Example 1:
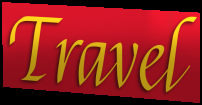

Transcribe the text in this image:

Travel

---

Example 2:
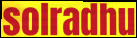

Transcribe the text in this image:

solradhu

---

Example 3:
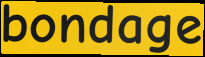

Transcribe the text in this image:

bondage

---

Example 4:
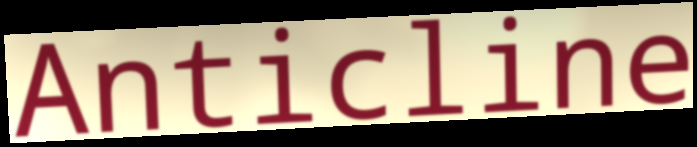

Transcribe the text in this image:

Anticline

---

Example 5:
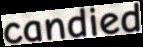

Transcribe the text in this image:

candied